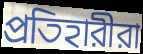
প্রতিহারীরা